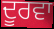
ਦੂਰਵਾ